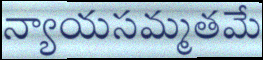
న్యాయసమ్మతమే